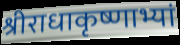
श्रीराधाकृष्णाभ्यां